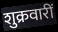
शुक्रवारीं